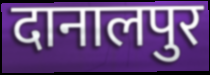
दानालपुर